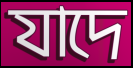
যাদে